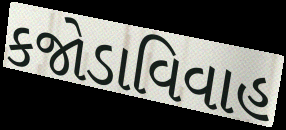
કજોડાવિવાહ